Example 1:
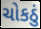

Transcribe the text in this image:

ચોકઠું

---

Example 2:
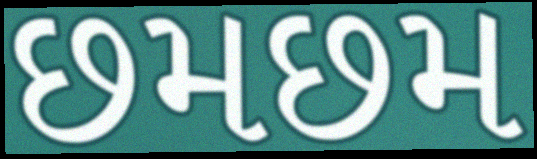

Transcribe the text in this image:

છમછમ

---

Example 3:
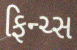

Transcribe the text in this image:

ફિન્ચ્સ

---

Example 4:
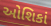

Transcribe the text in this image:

ઓશિકાં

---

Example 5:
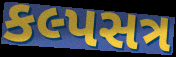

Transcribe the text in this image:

કલ્પસત્ર